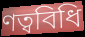
ণত্ববিধি